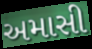
અમાસી